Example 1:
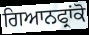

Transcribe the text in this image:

ਗਿਆਨਫ੍ਰਾਂਕੋ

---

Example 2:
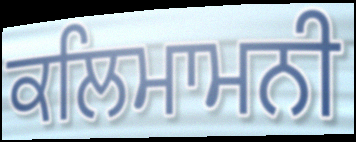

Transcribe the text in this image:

ਕਲਿਮਾਮਨੀ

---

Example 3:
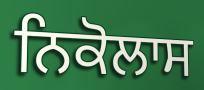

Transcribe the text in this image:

ਨਿਕੋਲਾਸ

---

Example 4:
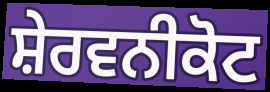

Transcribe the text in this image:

ਸ਼ੇਰਵਨੀਕੋਟ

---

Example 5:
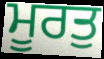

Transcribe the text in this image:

ਮੂਰਤੁ